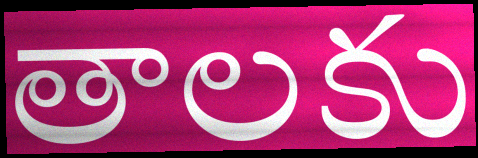
తాలకు